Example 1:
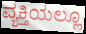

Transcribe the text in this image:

ವ್ಯಕ್ತಿಯಲ್ಲೂ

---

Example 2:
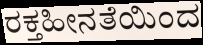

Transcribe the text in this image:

ರಕ್ತಹೀನತೆಯಿಂದ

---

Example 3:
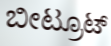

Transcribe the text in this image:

ಬೀಟ್ರೂಟ್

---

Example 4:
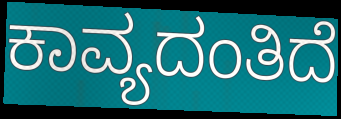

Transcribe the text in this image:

ಕಾವ್ಯದಂತಿದೆ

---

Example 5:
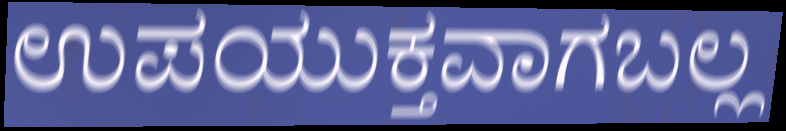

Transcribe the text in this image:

ಉಪಯುಕ್ತವಾಗಬಲ್ಲ